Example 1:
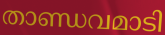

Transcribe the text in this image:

താണ്ഡവമാടി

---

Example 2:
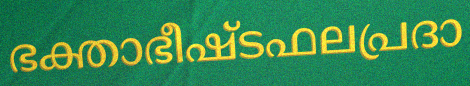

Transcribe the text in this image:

ഭക്താഭീഷ്ടഫലപ്രദാ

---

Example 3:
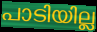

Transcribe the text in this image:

പാടിയില്ല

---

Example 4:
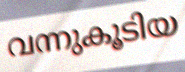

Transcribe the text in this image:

വന്നുകൂടിയ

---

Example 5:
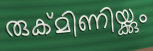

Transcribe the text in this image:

രുക്മിണിയ്ക്കും